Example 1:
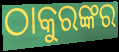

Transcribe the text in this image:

ଠାକୁରଙ୍କର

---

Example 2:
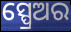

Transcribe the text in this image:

ସ୍ପ୍ରେଅର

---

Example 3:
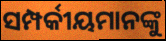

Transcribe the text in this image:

ସମ୍ପର୍କୀୟମାନଙ୍କୁ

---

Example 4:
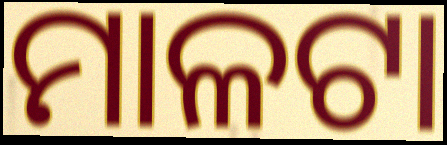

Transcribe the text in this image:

ମାଳଟା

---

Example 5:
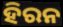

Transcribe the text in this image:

ହିରନ